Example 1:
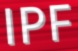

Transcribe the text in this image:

IPF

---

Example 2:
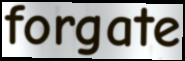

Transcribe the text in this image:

forgate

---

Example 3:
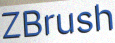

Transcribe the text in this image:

ZBrush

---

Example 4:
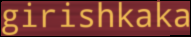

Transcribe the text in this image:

girishkaka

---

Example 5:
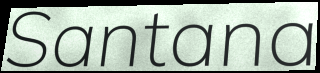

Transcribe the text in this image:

Santana